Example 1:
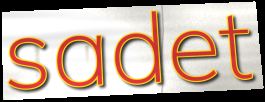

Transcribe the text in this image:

sadet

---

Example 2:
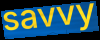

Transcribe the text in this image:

savvy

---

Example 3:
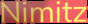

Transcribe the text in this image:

Nimitz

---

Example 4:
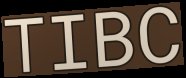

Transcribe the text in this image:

TIBC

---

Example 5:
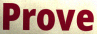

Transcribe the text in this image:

Prove